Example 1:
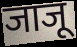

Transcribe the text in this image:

जाजू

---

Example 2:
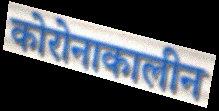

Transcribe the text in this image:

कोरोनाकालीन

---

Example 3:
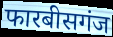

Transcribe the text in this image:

फारबीसगंज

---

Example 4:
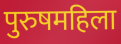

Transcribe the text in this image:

पुरुषमहिला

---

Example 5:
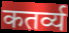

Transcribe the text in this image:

कतर्व्य